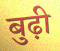
बुढ़ी